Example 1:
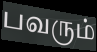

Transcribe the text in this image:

பவரும்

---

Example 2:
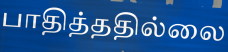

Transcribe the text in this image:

பாதித்ததில்லை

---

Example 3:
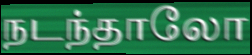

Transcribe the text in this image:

நடந்தாலோ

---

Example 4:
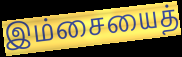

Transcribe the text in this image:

இம்சையைத்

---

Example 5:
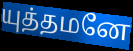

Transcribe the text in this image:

யுத்தமனே